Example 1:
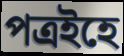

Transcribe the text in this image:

পত্ৰইহে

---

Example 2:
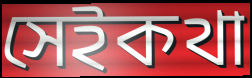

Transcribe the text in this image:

সেইকথা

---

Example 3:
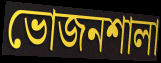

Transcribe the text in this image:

ভোজনশালা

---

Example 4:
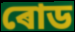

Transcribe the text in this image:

ৰোড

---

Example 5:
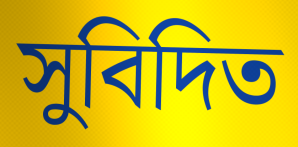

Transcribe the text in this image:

সুবিদিত